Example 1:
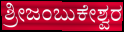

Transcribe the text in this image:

ಶ್ರೀಜಂಬುಕೇಶ್ವರ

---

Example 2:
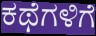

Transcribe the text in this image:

ಕಥೆಗಳಿಗೆ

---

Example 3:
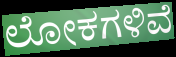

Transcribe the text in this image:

ಲೋಕಗಳಿವೆ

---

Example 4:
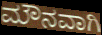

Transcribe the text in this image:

ಮೌನವಾಗಿ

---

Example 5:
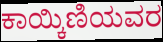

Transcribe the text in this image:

ಕಾಯ್ಕಿಣಿಯವರ